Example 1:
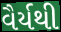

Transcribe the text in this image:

વૈર્યથી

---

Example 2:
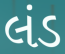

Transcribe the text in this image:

લંડ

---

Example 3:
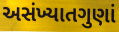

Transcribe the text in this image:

અસંખ્યાતગુણાં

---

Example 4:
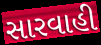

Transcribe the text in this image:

સારવાહી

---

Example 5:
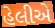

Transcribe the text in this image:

હેલીએ